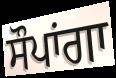
ਸੌਪਾਂਗਾ